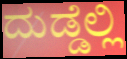
ದುಡ್ಡೆಲ್ಲಿ